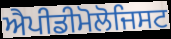
ਐਪੀਡੀਮੋਲੋਜਿਸਟ